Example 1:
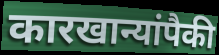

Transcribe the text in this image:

कारखान्यांपैकी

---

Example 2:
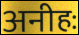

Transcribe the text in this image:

अनीहः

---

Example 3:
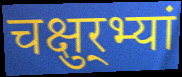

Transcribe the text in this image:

चक्षुर्भ्यां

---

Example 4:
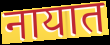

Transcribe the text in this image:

नायात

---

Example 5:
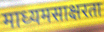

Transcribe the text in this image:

माध्यमसाक्षरता